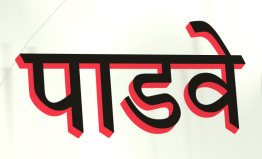
पाडवे